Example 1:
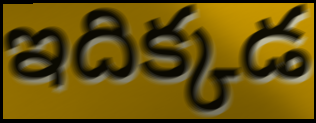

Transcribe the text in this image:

ఇదిక్కడ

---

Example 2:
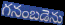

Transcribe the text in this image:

గనంబడెను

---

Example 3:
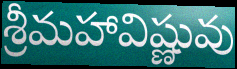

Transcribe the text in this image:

శ్రీమహావిష్ణువు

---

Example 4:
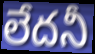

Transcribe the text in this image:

లేదనీ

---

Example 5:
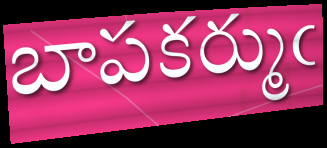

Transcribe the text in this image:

బాపకర్ముఁ